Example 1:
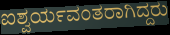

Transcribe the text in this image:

ಐಶ್ವರ್ಯವಂತರಾಗಿದ್ದರು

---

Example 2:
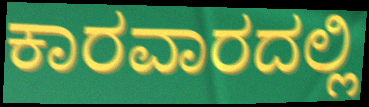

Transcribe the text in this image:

ಕಾರವಾರದಲ್ಲಿ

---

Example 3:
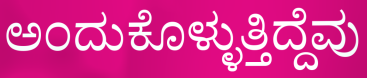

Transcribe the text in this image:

ಅಂದುಕೊಳ್ಳುತ್ತಿದ್ದೆವು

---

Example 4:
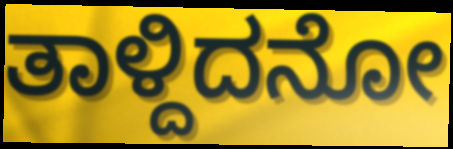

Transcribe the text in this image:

ತಾಳ್ದಿದನೋ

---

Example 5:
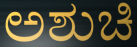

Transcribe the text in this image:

ಅಶುಚಿ